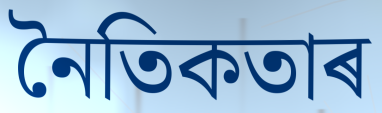
নৈতিকতাৰ